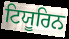
ਟਿਯੂਰਿਨ